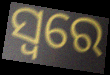
ସ୍ବରେ